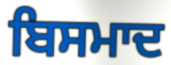
ਬਿਸਮਾਦ